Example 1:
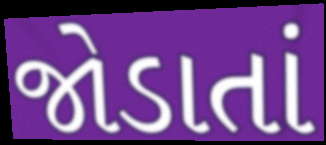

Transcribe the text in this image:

જોડાતાં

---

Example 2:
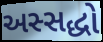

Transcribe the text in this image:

અસ્સદ્ધો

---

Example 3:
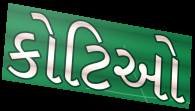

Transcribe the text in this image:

કોટિઓ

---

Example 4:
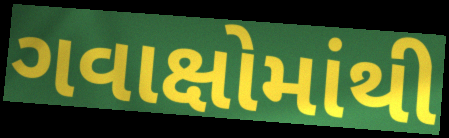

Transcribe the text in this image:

ગવાક્ષોમાંથી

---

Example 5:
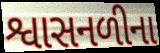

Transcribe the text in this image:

શ્વાસનળીના